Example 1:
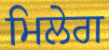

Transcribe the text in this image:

ਮਿਲੇਗ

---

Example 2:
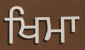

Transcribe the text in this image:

ਖਿਮਾ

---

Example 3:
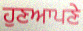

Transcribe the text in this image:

ਹੁਣਆਪਣੇ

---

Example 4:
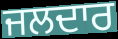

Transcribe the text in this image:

ਜਲਦਾਰ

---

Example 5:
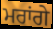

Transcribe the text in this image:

ਮਰਾਂਗੇ